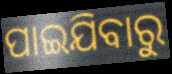
ପାଇଯିବାରୁ